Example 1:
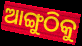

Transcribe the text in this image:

ଆଙ୍ଗୁଠିକୁ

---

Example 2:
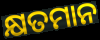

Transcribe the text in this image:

କ୍ଷତମାନ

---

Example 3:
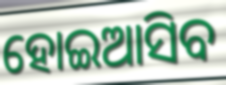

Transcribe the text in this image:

ହୋଇଆସିବ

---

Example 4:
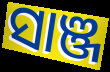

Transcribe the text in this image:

ସାଞ୍ଜ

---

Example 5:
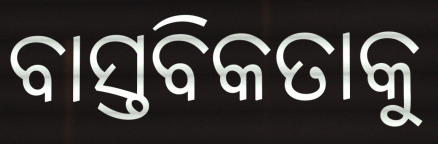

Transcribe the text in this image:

ବାସ୍ତବିକତାକୁ